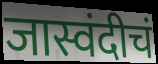
जास्वंदीचं